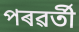
পৰৱৰ্তী